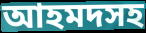
আহমদসহ